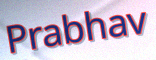
Prabhav